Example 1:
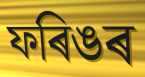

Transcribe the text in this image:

ফৰিঙৰ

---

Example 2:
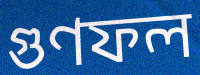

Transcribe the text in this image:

গুণফল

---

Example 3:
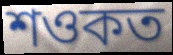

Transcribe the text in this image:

শওকত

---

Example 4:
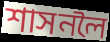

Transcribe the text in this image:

শাসনলৈ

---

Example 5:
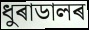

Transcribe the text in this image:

ধুৰাডালৰ